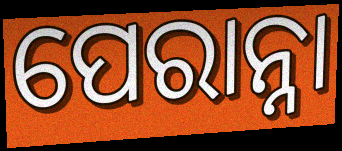
ପେରାନ୍ନା